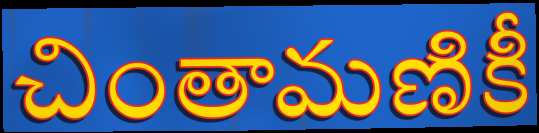
చింతామణికీ